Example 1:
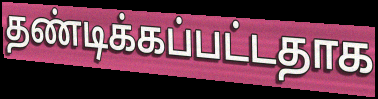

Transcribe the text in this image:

தண்டிக்கப்பட்டதாக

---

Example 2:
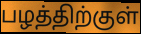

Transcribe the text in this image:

பழத்திற்குள்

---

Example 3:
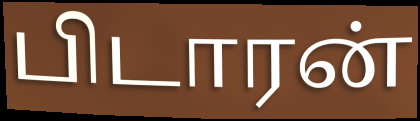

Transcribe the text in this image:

பிடாரன்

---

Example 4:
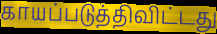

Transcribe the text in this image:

காயப்படுத்திவிட்டது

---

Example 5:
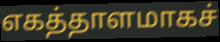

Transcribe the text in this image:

எகத்தாளமாகச்